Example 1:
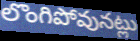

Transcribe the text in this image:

లొంగిపోవునట్లు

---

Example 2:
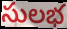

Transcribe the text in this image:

సులభ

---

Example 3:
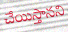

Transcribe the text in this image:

చేయిస్తానని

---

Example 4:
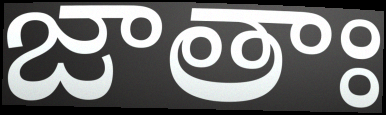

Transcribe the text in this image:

జాతాః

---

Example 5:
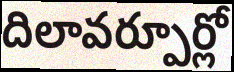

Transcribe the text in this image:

దిలావర్పూర్లో